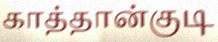
காத்தான்குடி